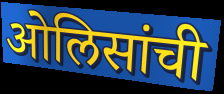
ओलिसांची